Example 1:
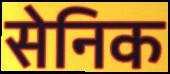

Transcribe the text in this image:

सेनिक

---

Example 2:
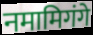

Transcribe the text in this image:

नमामिगंगे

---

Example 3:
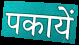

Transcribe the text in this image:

पकायें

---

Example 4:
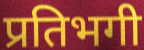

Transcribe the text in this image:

प्रतिभगी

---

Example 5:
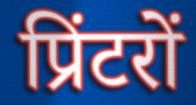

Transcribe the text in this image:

प्रिंटरों